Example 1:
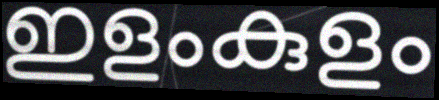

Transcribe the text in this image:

ഇളംകുളം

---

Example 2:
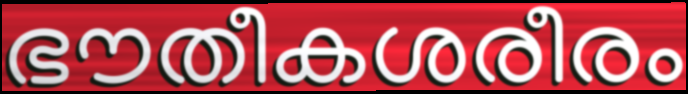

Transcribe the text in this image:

ഭൗതീകശരീരം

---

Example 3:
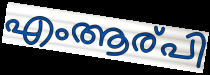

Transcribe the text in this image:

എംആര്പി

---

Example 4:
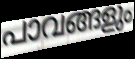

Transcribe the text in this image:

പാവങ്ങളും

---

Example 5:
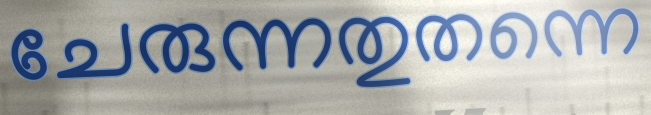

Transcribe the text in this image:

ചേരുന്നതുതന്നെ